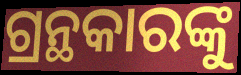
ଗ୍ରନ୍ଥକାରଙ୍କୁ